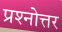
प्रश्‍नोत्तर